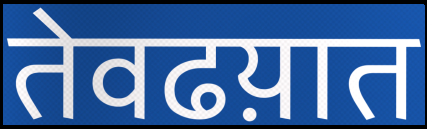
तेवढय़ात